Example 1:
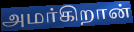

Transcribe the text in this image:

அமர்கிறான்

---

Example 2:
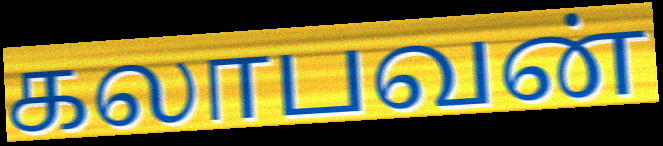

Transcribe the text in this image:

கலாபவன்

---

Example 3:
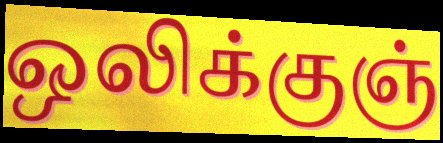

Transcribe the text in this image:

ஒலிக்குஞ்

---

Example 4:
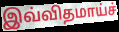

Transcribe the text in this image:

இவ்விதமாய்ச்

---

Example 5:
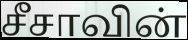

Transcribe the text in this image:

சீசாவின்